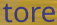
tore